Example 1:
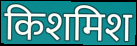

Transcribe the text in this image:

किशमिश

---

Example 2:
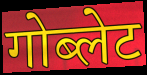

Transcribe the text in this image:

गोब्लेट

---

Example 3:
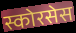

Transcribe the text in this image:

स्कोरसेस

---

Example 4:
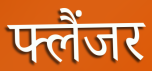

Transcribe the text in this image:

फ्लैंजर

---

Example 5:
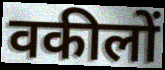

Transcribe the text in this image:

वकीलों